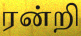
ரன்றி